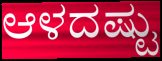
ಆಳದಷ್ಟು